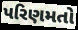
પરિણમતો